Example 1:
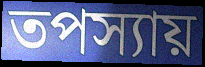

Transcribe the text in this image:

তপস্যায়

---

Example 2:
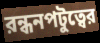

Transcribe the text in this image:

রন্ধনপটুত্বের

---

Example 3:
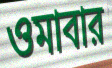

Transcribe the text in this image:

ওমাবার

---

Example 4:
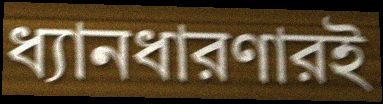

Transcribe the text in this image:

ধ্যানধারণারই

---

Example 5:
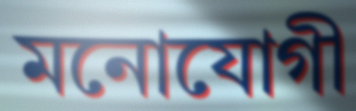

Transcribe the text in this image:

মনোযোগী